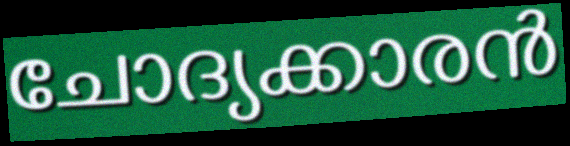
ചോദ്യക്കാരൻ